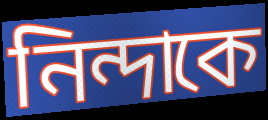
নিন্দাকে